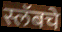
स्लॅबचे